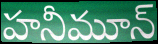
హనీమూన్